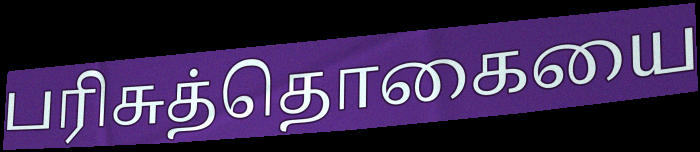
பரிசுத்தொகையை